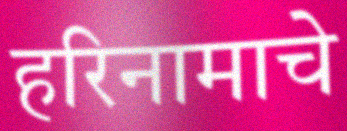
हरिनामाचे